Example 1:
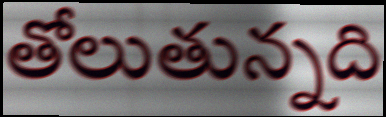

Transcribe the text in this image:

తోలుతున్నది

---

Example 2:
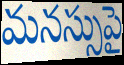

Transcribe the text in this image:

మనస్సుపై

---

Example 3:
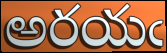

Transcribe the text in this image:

అరయఁ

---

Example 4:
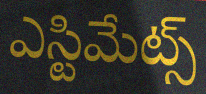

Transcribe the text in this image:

ఎస్టిమేట్స్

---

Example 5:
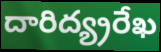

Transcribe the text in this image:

దారిద్య్రరేఖ